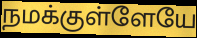
நமக்குள்ளேயே